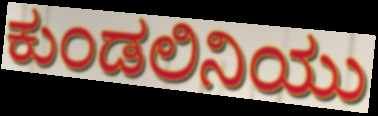
ಕುಂಡಲಿನಿಯು